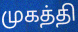
முகத்தி